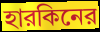
হারকিনের